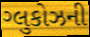
ગ્લુકોઝની